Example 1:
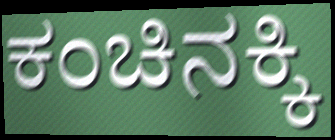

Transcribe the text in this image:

ಕಂಚಿನಕ್ಕಿ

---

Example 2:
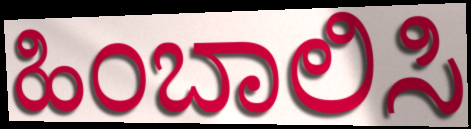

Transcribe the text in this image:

ಹಿಂಬಾಲಿಸಿ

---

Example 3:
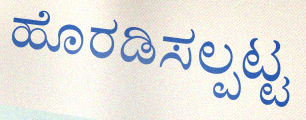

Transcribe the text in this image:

ಹೊರಡಿಸಲ್ಪಟ್ಟ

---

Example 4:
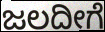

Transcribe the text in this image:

ಜಲದೀಗೆ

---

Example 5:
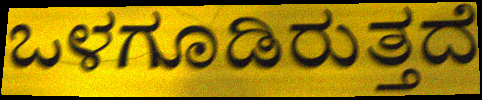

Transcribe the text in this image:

ಒಳಗೂಡಿರುತ್ತದೆ